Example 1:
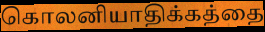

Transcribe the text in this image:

கொலனியாதிக்கத்தை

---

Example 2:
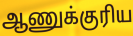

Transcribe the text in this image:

ஆணுக்குரிய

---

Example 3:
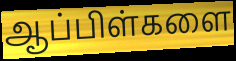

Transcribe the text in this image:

ஆப்பிள்களை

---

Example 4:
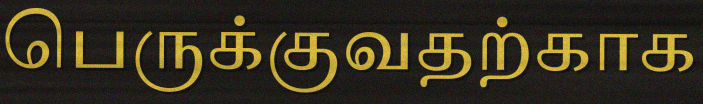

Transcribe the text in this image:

பெருக்குவதற்காக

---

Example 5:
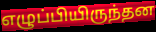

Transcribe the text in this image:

எழுப்பியிருந்தன